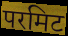
परमिट